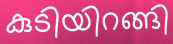
കുടിയിറങ്ങി